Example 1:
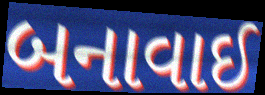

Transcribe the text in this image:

બનાવાઈ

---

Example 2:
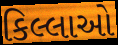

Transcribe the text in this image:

કિલ્લાઓ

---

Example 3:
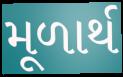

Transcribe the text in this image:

મૂળાર્થ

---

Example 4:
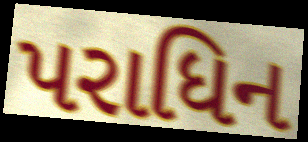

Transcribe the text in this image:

પરાધિન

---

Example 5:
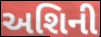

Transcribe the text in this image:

અશિની